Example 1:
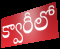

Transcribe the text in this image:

క్వారీలో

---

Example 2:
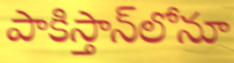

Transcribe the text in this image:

పాకిస్తాన్‌లోనూ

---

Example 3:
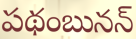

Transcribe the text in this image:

పథంబునన్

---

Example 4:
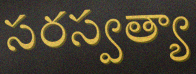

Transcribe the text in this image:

సరస్వత్యా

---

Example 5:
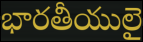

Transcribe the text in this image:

భారతీయులై